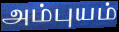
அம்புயம்